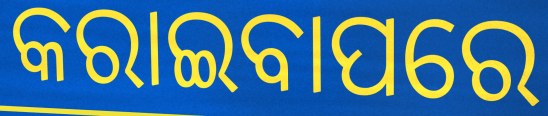
କରାଇବାପରେ